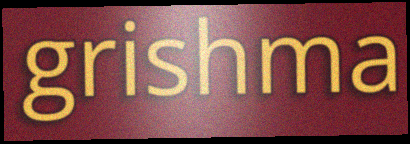
grishma